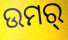
ଉମର୍